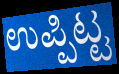
ಉಪ್ಪಿಟ್ಟ